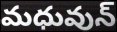
మధువున్